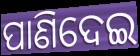
ପାଣିଦେଇ